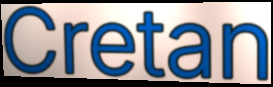
Cretan